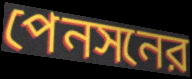
পেনসনের